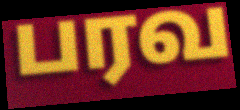
பரவ